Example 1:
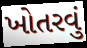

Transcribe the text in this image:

ખોતરવું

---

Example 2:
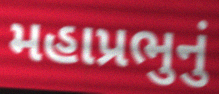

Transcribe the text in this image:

મહાપ્રભુનું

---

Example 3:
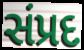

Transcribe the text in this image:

સંપ્રદ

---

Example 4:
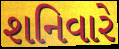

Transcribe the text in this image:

શનિવારે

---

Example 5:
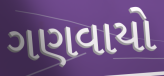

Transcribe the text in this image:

ગણવાયો